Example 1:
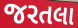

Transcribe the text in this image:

જરતલા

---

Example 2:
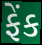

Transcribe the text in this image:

ફેંક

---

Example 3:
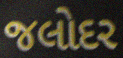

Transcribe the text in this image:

જલોદર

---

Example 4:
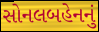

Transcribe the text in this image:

સોનલબહેનનું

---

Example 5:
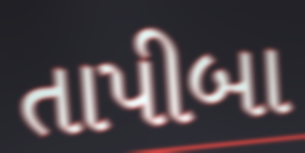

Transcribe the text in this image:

તાપીબા